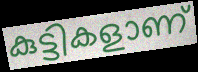
കുട്ടികളാണ്